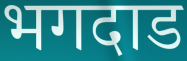
भगदाड